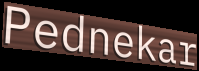
Pednekar